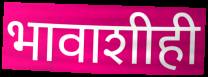
भावाशीही